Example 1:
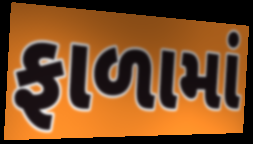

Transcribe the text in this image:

ફાળામાં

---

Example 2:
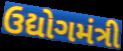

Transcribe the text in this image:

ઉદ્યોગમંત્રી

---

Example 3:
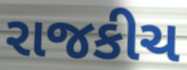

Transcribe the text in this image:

રાજકીચ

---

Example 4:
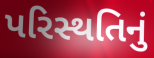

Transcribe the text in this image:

પરિસ્થતિનું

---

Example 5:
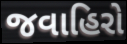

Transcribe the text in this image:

જવાહિરો